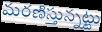
మరణిస్తున్నట్టు